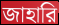
জাহারি